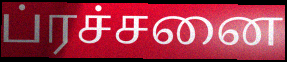
ப்ரச்சனை